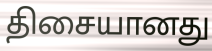
திசையானது